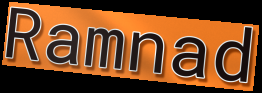
Ramnad